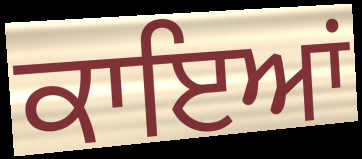
ਕਾਇਆਂ